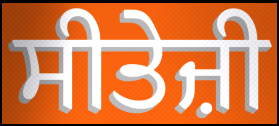
ਸੀਤੇਜ਼ੀ